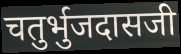
चतुर्भुजदासजी